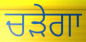
ਚੜੇਗਾ